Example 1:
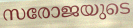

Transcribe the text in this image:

സരോജയുടെ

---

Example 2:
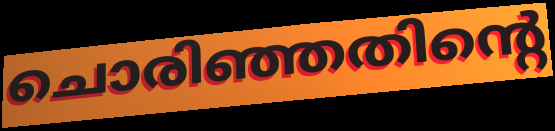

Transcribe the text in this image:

ചൊരിഞ്ഞതിന്റെ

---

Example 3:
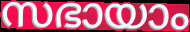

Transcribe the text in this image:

സഭായാം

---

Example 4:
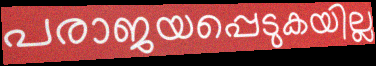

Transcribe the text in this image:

പരാജയപ്പെടുകയില്ല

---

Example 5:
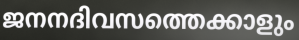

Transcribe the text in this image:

ജനനദിവസത്തെക്കാളും